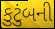
કુટુંબની